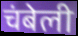
चंबेली